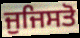
ਜੁਜਿਸਤੋ